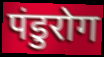
पंडुरोग